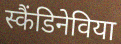
स्कैंडिनेविया